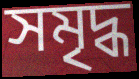
সমৃদ্ধ